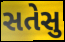
સતેસુ